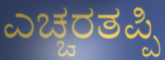
ಎಚ್ಚರತಪ್ಪಿ